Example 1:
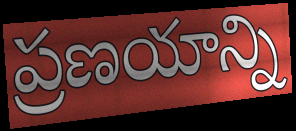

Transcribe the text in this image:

ప్రణయాన్ని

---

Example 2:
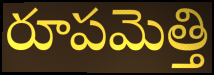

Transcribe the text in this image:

రూపమెత్తి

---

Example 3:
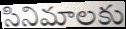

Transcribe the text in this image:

సినిమాలకు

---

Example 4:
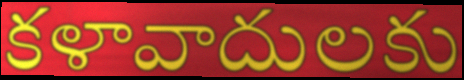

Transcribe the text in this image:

కళావాదులకు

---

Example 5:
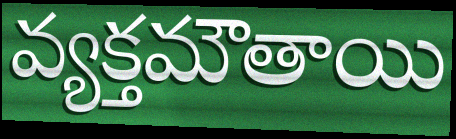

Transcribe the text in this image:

వ్యక్తమౌతాయి